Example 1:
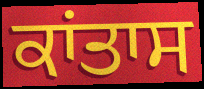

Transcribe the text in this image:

ਕਾਂਤਾਸ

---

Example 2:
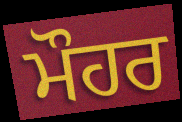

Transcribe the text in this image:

ਮੌਹਰ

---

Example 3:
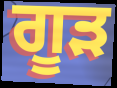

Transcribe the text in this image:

ਗੂੜ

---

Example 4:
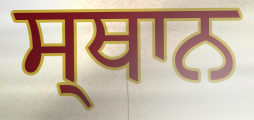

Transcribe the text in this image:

ਸ੍ਥਾਨ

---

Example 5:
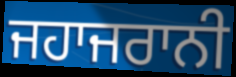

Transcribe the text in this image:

ਜਹਾਜਰਾਨੀ